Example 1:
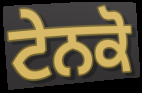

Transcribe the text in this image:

ਟੇਨਕੋ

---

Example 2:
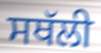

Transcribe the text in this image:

ਸਥੱਲੀ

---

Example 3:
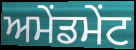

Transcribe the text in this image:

ਅਮੇਂਡਮੇਂਟ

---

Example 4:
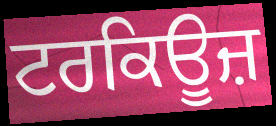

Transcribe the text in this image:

ਟਰਕਿਊਜ਼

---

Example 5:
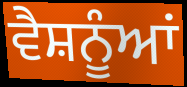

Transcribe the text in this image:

ਵੈਸ਼ਨੂੰਆਂ